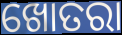
ଖୋତରା